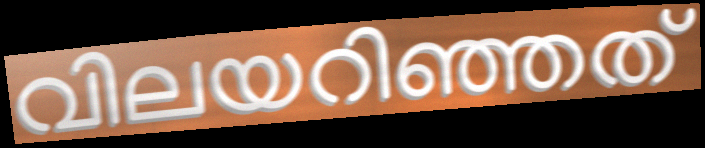
വിലയറിഞ്ഞത്